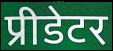
प्रीडेटर